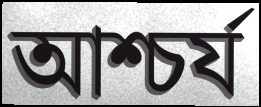
আশ্চৰ্য